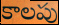
కాలపు